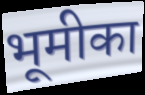
भूमीका